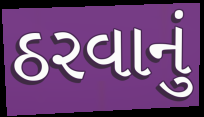
ઠરવાનું